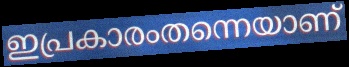
ഇപ്രകാരംതന്നെയാണ്